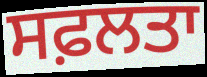
ਸਫ਼ਲਤਾ